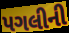
પગલીની